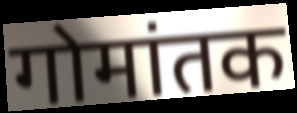
गोमांतक